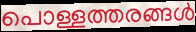
പൊള്ളത്തരങ്ങൾ